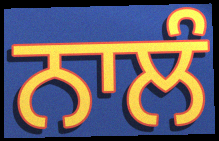
ਨਾਲੰ